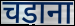
चडाना